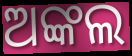
ଅଙ୍କଲ